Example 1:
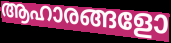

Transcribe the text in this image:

ആഹാരങ്ങളോ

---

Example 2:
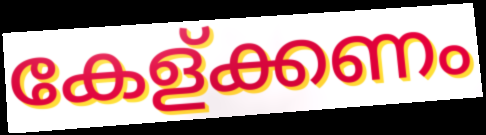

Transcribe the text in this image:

കേള്ക്കണം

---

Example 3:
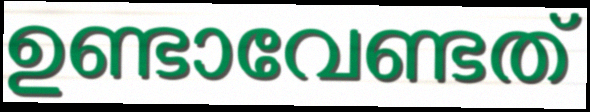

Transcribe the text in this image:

ഉണ്ടാവേണ്ടത്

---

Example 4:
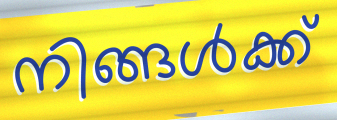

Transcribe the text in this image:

നിങ്ങൾക്ക്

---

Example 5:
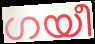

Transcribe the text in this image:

ഗയീ